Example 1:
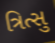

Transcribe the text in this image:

ત્રિત્સુ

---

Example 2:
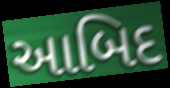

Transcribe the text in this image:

આબિદ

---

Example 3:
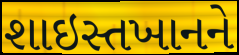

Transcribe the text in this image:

શાઇસ્તખાનને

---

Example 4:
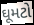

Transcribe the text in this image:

ઘૂમટો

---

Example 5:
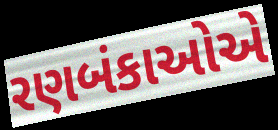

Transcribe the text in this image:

રણબંકાઓએ